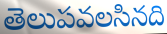
తెలుపవలసినది